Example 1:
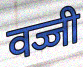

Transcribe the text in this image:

वज्जी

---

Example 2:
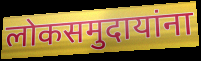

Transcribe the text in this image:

लोकसमुदायांना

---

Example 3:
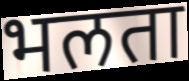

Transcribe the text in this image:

भलता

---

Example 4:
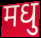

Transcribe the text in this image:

मधु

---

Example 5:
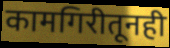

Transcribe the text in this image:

कामगिरीतूनही